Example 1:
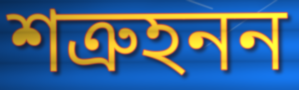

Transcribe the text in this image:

শত্রুহনন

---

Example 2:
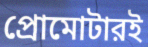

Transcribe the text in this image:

প্রোমোটারই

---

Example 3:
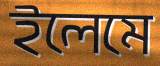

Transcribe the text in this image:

ইলেমে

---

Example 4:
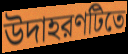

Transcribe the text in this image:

উদাহরণটিতে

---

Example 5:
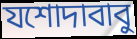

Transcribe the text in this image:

যশোদাবাবু